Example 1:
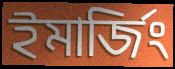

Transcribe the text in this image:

ইমার্জিং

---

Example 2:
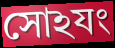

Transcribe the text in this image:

সোঽযং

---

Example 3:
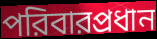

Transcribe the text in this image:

পরিবারপ্রধান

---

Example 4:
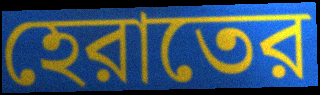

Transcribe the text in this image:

হেরাতের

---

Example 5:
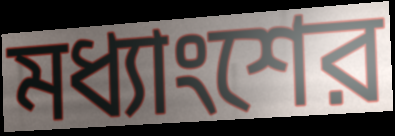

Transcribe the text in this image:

মধ্যাংশের